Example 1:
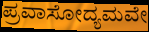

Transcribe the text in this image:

ಪ್ರವಾಸೋದ್ಯಮವೇ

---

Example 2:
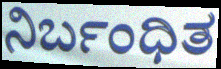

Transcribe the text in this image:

ನಿರ್ಬಂಧಿತ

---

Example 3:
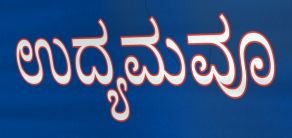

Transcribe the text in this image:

ಉದ್ಯಮವೂ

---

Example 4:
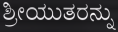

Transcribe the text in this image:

ಶ್ರೀಯುತರನ್ನು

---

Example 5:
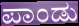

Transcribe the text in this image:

ಪಾಂಡು